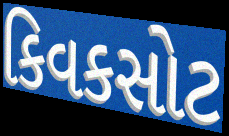
કિવકસોટ